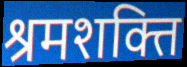
श्रमशक्ति